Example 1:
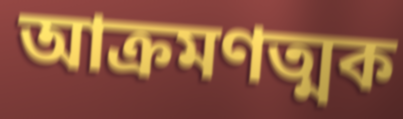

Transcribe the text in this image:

আক্রমণত্মক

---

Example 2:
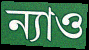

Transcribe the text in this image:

ন্যাও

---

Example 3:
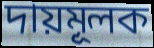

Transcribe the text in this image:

দায়মূলক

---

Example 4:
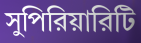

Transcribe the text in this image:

সুপিরিয়ারিটি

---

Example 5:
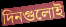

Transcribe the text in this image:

দিনগুলোই